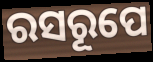
ରସରୂପେ